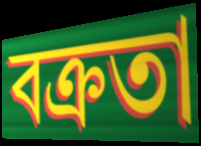
বক্ৰতা